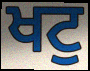
ਖਟੁ